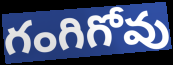
గంగిగోవు